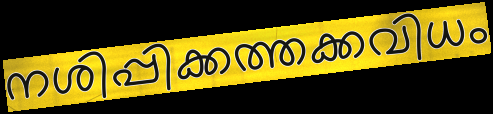
നശിപ്പിക്കത്തക്കവിധം